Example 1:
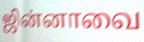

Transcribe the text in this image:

ஜின்னாவை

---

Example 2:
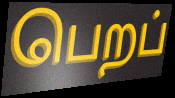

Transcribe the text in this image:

பெறப்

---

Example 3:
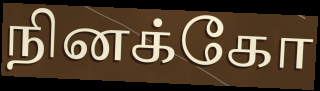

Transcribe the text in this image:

நினக்கோ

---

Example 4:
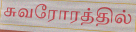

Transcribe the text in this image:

சுவரோரத்தில்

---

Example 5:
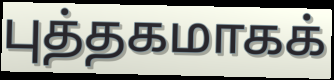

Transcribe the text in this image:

புத்தகமாகக்